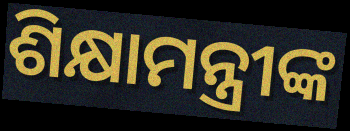
ଶିକ୍ଷାମନ୍ତ୍ରୀଙ୍କ